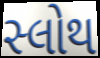
સ્લોથ